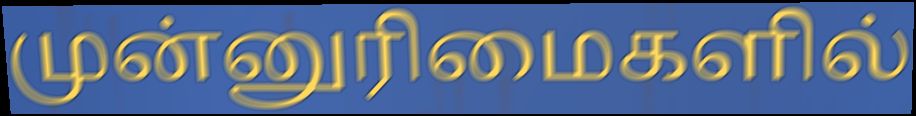
முன்னுரிமைகளில்